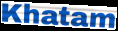
Khatam